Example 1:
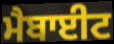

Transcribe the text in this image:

ਮੈਬਾਈਟ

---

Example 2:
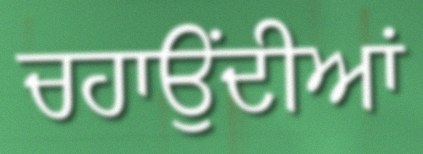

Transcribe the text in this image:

ਚਹਾਉਂਦੀਆਂ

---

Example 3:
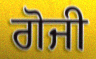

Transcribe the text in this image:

ਗੋਜੀ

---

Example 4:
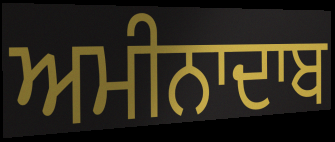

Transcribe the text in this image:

ਅਮੀਨਾਦਾਬ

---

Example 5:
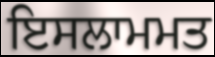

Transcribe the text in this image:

ਇਸਲਾਮਮਤ